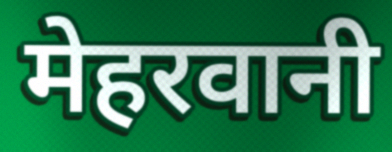
मेहरवानी